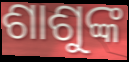
ଶାଶୁଙ୍କ